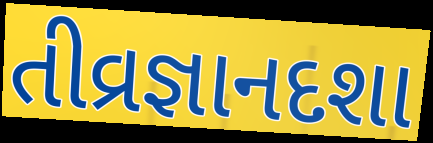
તીવ્રજ્ઞાનદશા